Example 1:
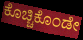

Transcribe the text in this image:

ಕೊಚ್ಚಿಕೊಂಡೇ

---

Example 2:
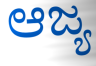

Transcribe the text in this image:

ಆಜ್ಯ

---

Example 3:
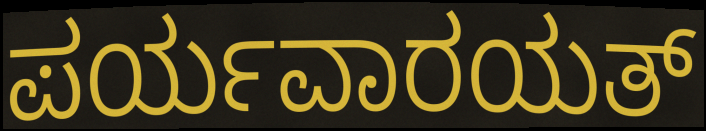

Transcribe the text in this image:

ಪರ್ಯವಾರಯತ್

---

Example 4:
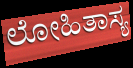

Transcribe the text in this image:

ಲೋಹಿತಾಸ್ಯ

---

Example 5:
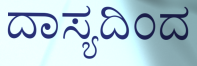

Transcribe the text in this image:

ದಾಸ್ಯದಿಂದ